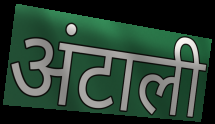
अंटाली